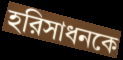
হরিসাধনকে